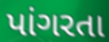
પાંગરતા